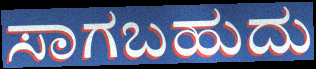
ಸಾಗಬಹುದು